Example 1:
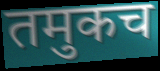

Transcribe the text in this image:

तमुकच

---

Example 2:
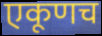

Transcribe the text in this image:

एकूणच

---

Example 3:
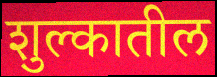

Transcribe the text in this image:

शुल्कातील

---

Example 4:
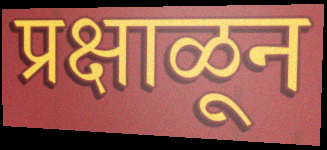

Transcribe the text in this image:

प्रक्षाळून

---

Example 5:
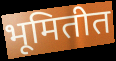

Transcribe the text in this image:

भूमितीत